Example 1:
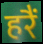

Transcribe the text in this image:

हरैं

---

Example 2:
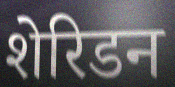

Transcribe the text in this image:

शेरिडन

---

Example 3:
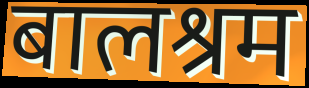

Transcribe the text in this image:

बालश्रम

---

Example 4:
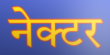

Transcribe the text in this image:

नेक्टर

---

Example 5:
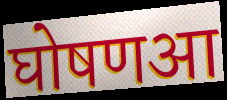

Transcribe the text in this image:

घोषणआ